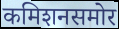
कमिशनसमोर